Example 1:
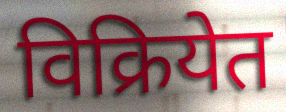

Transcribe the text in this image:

विक्रियेत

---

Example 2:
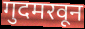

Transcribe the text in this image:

गुदमरवून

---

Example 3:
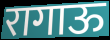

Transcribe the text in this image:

रागाऊ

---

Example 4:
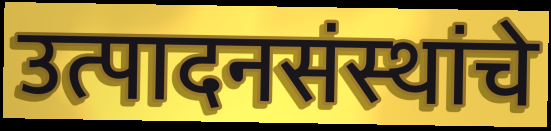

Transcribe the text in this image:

उत्पादनसंस्थांचे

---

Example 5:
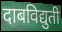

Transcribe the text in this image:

दाबविद्युती